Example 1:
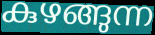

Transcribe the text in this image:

കുഴങ്ങുന്ന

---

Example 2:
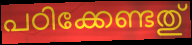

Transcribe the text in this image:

പഠിക്കേണ്ടതു്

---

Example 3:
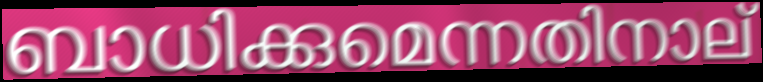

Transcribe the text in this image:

ബാധിക്കുമെന്നതിനാല്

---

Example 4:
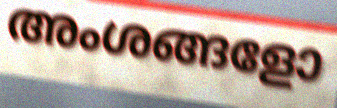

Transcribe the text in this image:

അംശങ്ങളോ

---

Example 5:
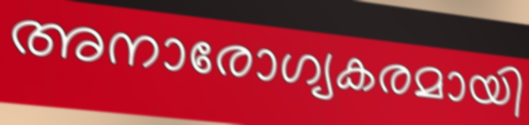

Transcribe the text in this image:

അനാരോഗ്യകരമായി